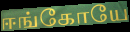
ஈங்கோயே